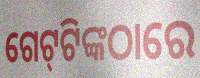
ଗେଟ୍‌ଟିଙ୍କଠାରେ